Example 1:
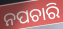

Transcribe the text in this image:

ନପଚାରି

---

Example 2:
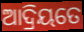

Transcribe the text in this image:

ଆଦ୍ରିୟତେ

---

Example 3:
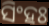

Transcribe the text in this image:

ସିଂହଃ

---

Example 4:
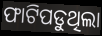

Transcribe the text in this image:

ଫାଟିପଡୁଥିଲା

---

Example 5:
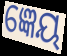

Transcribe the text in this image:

ଜ୍ଞେୟ